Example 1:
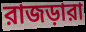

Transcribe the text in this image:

রাজড়ারা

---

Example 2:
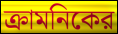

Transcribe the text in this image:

ক্রামনিকের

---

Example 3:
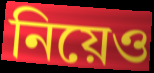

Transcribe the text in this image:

নিয়েও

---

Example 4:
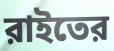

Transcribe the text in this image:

রাইতের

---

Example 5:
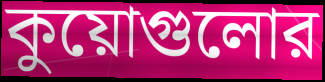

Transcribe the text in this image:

কুয়োগুলোর